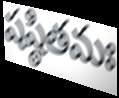
షష్ఠితమః